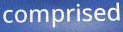
comprised